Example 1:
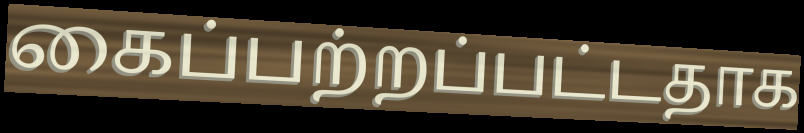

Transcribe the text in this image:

கைப்பற்றப்பட்டதாக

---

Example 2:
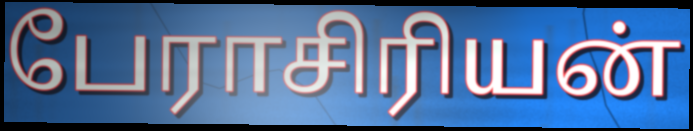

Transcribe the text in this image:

பேராசிரியன்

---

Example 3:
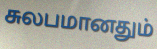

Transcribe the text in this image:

சுலபமானதும்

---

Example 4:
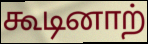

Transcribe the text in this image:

கூடினாற்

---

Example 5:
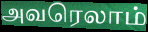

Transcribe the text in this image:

அவரெலாம்